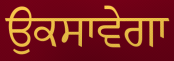
ਉਕਸਾਵੇਗਾ